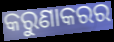
କରୁଣାକରର